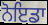
ਨੋਇਡਾ